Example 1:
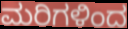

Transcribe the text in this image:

ಮರಿಗಳಿಂದ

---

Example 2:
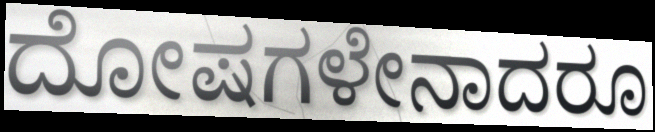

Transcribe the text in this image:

ದೋಷಗಳೇನಾದರೂ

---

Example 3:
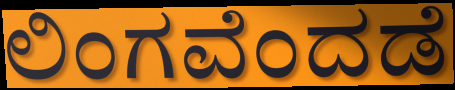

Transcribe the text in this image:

ಲಿಂಗವೆಂದಡೆ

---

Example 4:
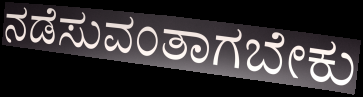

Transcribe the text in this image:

ನಡೆಸುವಂತಾಗಬೇಕು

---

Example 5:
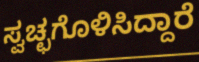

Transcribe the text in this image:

ಸ್ವಚ್ಛಗೊಳಿಸಿದ್ದಾರೆ